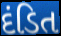
દંડિત